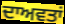
ਦਾਅਵਤਾਂ